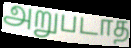
அறுபடாத